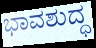
ಭಾವಶುದ್ಧ